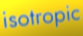
isotropic